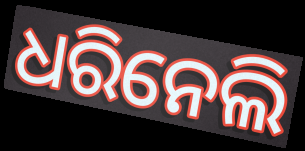
ଧରିନେଲି